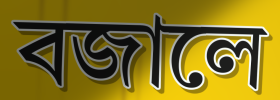
বজালে